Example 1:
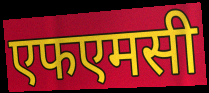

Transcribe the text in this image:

एफएमसी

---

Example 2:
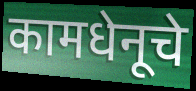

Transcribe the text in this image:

कामधेनूचे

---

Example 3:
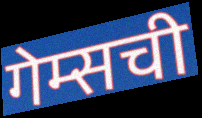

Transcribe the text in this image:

गेम्सची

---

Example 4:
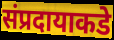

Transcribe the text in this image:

संप्रदायाकडे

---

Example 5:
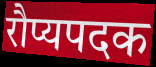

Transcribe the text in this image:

रौप्यपदक